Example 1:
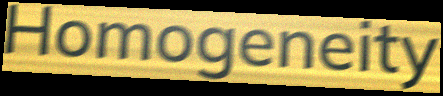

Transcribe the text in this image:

Homogeneity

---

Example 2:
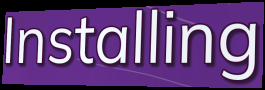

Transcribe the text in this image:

Installing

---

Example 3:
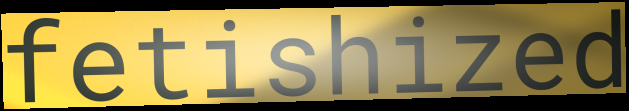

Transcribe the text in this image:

fetishized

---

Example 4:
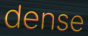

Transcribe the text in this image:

dense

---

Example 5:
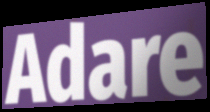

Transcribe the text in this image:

Adare